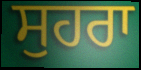
ਸੁਹਰਾ